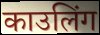
काउलिंग